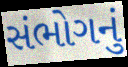
સંભોગનું